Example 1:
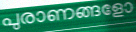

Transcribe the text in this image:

പുരാണങ്ങളോ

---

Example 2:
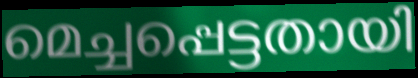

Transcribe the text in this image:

മെച്ചപ്പെട്ടതായി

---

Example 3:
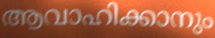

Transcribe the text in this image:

ആവാഹിക്കാനും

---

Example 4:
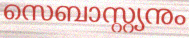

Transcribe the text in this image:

സെബാസ്റ്റ്യനും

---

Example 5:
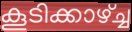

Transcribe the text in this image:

കൂടിക്കാഴ്ച്ച